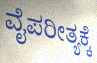
ವೈಪರೀತ್ಯಕ್ಕೆ